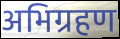
अभिग्रहण